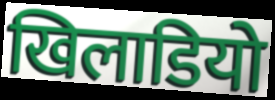
खिलाडियो